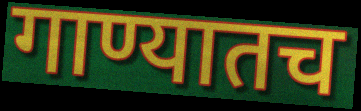
गाण्यातच